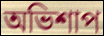
অভিশাপ